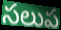
సలుప